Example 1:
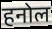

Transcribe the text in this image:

हनोल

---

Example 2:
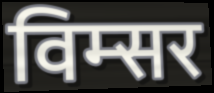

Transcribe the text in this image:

विम्सर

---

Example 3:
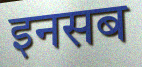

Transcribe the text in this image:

इनसब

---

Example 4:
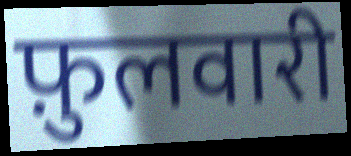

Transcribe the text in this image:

फ़ुलवारी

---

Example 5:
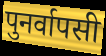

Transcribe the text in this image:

पुनर्वापसी